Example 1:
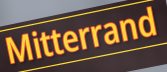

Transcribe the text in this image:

Mitterrand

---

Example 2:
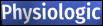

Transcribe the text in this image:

Physiologic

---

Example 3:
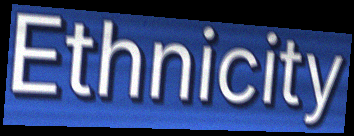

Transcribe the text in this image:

Ethnicity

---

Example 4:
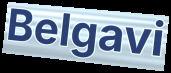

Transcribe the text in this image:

Belgavi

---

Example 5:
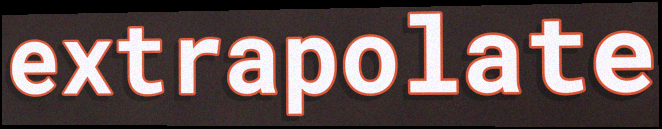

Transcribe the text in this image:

extrapolate